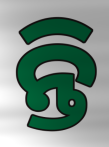
ନ୍ତି